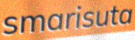
smarisuta